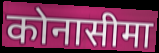
कोनासीमा